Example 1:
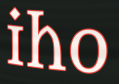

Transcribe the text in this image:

iho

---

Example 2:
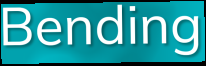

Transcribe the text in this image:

Bending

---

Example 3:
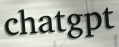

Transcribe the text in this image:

chatgpt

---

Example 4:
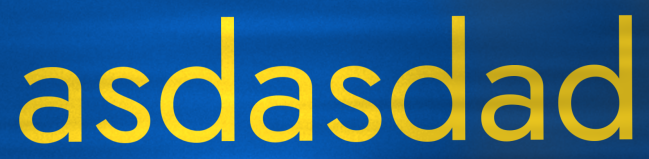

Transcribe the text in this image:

asdasdad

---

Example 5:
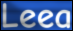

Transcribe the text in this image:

Leea